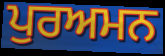
ਪੁਰਅਮਨ